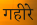
गहीरे